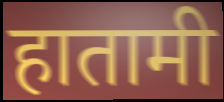
हातामी